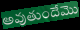
అవుతుందేమొ